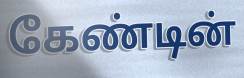
கேண்டின்